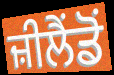
ਜ਼ੀਲੈਂਡੋਂ